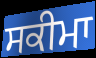
ਸਕੀਮਾ